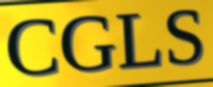
CGLS